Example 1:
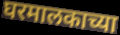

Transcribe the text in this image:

घरमालकाच्या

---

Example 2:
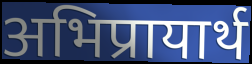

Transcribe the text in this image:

अभिप्रायार्थ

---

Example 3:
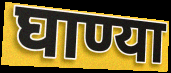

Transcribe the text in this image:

घाण्या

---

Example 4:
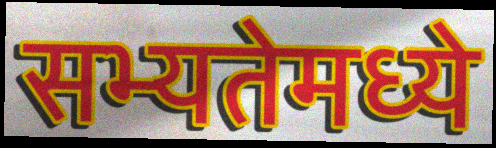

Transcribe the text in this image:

सभ्यतेमध्ये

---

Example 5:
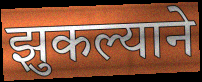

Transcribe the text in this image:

झुकल्याने